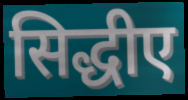
सिद्धीए